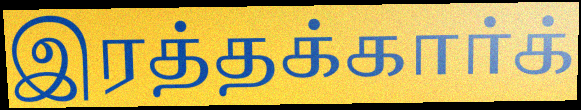
இரத்தக்கார்க்